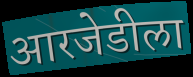
आरजेडीला